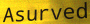
Asurved